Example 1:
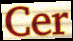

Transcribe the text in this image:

Cer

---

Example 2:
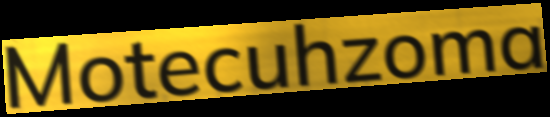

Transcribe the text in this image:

Motecuhzoma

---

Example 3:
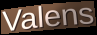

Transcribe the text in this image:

Valens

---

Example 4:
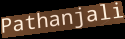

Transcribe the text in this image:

Pathanjali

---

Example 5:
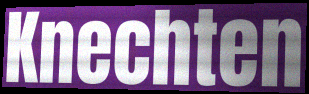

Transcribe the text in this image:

Knechten